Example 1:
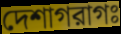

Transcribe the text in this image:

দেশাগরাগঃ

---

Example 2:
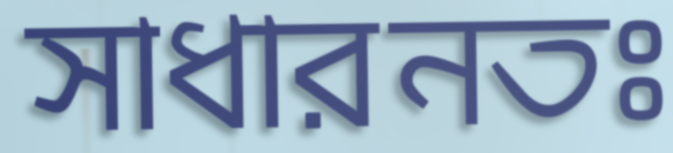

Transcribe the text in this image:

সাধারনতঃ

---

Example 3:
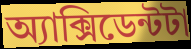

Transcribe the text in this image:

অ্যাক্সিডেন্টটা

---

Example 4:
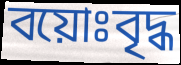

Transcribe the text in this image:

বয়োঃবৃদ্ধ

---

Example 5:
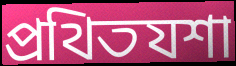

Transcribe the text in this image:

প্রথিতযশা